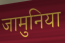
जामुनिया